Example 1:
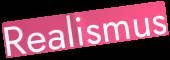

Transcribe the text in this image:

Realismus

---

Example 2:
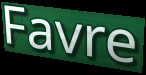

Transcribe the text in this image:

Favre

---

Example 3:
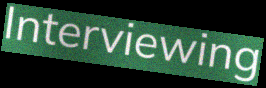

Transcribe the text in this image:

Interviewing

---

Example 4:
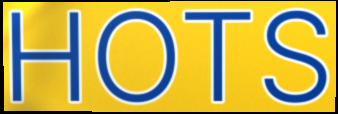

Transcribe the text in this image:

HOTS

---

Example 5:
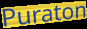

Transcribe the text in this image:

Puraton